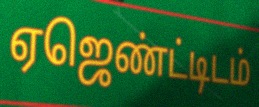
ஏஜெண்ட்டிடம்